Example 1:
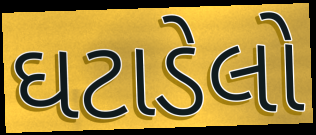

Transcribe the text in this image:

ઘટાડેલો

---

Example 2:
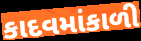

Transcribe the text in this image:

કાદવમાંકાળી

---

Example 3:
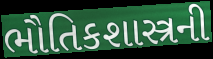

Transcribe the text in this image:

ભૌતિકશાસ્ત્રની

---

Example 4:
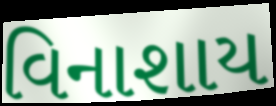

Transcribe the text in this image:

વિનાશાય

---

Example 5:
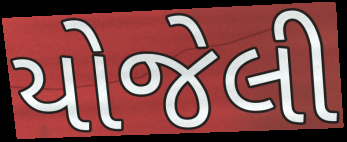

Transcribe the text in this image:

યોજેલી